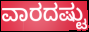
ವಾರದಷ್ಟು